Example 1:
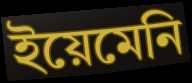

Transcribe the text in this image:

ইয়েমেনি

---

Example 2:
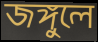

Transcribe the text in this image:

জঙ্গুলে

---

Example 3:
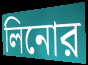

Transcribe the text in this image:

লিনোর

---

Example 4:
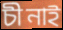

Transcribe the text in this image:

চীনাই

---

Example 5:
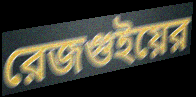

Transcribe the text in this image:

রেজগুইয়ের